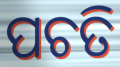
ପଚତି